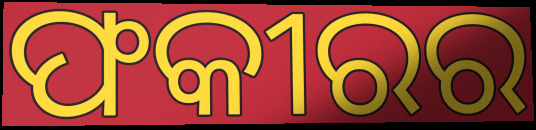
ଫକୀରର